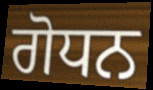
ਗੋਧਨ